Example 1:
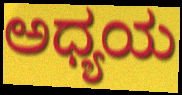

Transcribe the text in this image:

ಅಧ್ಯಯ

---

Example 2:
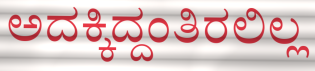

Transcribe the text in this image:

ಅದಕ್ಕಿದ್ದಂತಿರಲಿಲ್ಲ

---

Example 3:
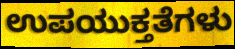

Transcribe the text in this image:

ಉಪಯುಕ್ತತೆಗಳು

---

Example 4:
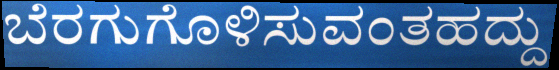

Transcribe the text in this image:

ಬೆರಗುಗೊಳಿಸುವಂತಹದ್ದು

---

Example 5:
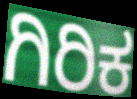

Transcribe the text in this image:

ಗಿರಿಕ